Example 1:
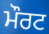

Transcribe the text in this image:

ਮੌਰਟ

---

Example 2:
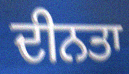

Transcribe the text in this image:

ਦੀਨਤਾ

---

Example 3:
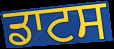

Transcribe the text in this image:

ਡਾਟਸ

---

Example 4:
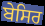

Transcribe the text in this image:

ਬੇਸਿਰ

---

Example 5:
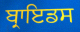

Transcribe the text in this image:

ਬ੍ਰਾਇਡਸ